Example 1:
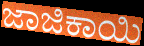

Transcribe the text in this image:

ಜಾಜಿಕಾಯಿ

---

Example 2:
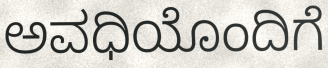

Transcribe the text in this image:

ಅವಧಿಯೊಂದಿಗೆ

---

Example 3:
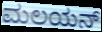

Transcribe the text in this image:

ಮಲಯನ್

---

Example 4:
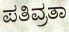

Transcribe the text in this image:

ಪತಿವ್ರತಾ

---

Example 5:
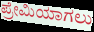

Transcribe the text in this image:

ಪ್ರೇಮಿಯಾಗಲು